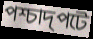
পশ্চাদ্‌পটে